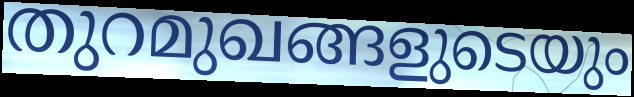
തുറമുഖങ്ങളുടെയും